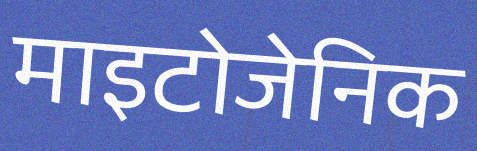
माइटोजेनिक